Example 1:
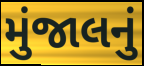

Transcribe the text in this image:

મુંજાલનું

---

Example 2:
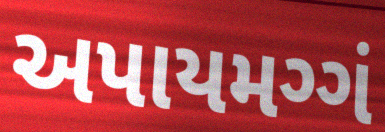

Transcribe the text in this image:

અપાયમગ્ગં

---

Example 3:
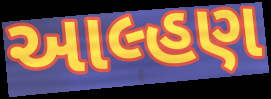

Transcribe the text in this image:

આલ્હણ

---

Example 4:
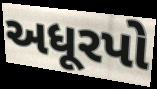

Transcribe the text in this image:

અધૂરપો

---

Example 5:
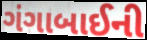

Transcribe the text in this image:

ગંગાબાઈની